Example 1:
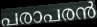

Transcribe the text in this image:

പരാപരൻ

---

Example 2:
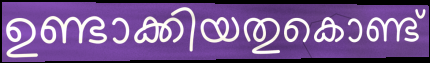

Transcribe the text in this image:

ഉണ്ടാക്കിയതുകൊണ്ട്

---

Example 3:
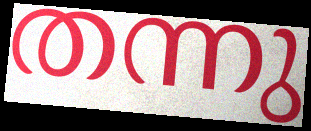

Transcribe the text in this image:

തന്നു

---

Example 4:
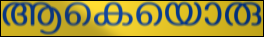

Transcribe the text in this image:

ആകെയൊരു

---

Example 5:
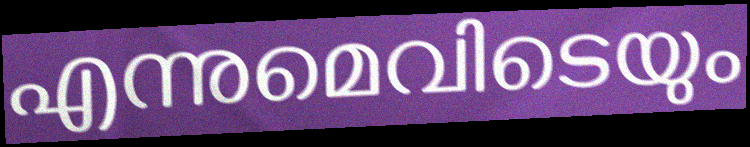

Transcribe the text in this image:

എന്നുമെവിടെയും